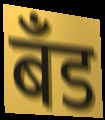
बॅंड